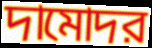
দামোদর